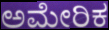
ಅಮೇರಿಕ